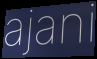
ajani